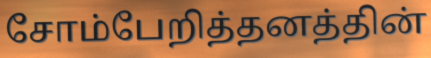
சோம்பேறித்தனத்தின்